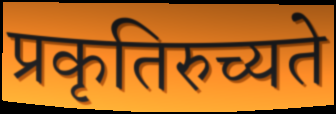
प्रकृतिरुच्यते